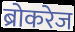
ब्रोकरेज